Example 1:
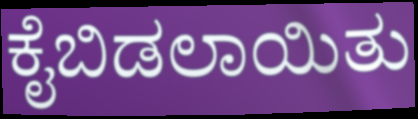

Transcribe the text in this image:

ಕೈಬಿಡಲಾಯಿತು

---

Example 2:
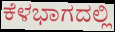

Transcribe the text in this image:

ಕೆಳಭಾಗದಲ್ಲಿ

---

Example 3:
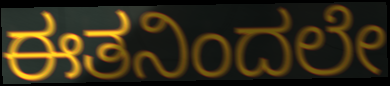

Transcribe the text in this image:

ಈತನಿಂದಲೇ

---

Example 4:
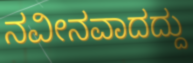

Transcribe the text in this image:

ನವೀನವಾದದ್ದು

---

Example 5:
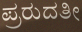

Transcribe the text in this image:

ಪ್ರರುದತೀ